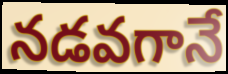
నడవగానే